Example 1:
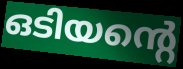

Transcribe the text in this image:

ഒടിയന്റെ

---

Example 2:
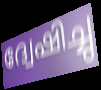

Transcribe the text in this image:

ദ്വേഷിച്ചു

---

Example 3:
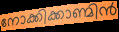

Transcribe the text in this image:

നോക്കിക്കാണ്മിൻ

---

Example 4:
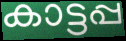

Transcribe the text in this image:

കാട്ടപ്പ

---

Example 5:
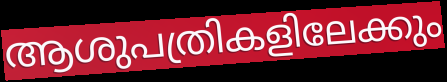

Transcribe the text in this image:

ആശുപത്രികളിലേക്കും